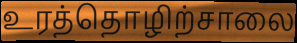
உரத்தொழிற்சாலை